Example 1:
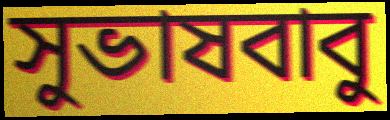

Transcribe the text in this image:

সুভাষবাবু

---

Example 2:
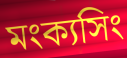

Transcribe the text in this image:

মংক্যসিং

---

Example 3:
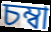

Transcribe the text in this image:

চম্বা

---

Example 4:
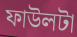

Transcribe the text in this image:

ফাউলটা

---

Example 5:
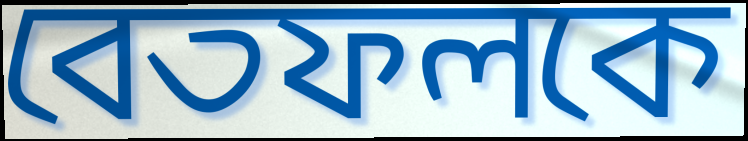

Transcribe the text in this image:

বেতফলকে